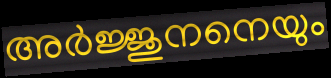
അർജ്ജുനനെയും